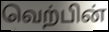
வெற்பின்